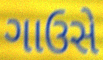
ગાઉસે